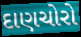
દાણચોરો